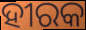
ହୀରକ